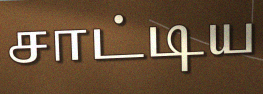
சாட்டிய